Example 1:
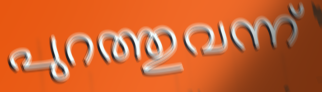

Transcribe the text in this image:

പുറത്തുവന്ന്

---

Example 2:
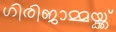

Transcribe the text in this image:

ഗിരിജാമ്മയ്ക്ക്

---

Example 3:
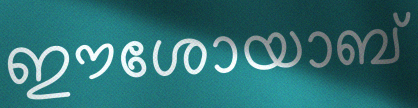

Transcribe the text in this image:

ഈശോയാബ്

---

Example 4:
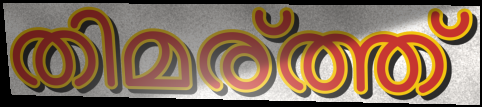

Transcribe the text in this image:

തിമര്ത്ത്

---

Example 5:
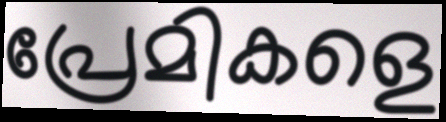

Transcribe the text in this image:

പ്രേമികളെ